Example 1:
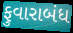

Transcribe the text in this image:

ફુવારાબંધ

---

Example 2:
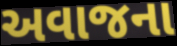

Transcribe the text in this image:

અવાજના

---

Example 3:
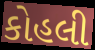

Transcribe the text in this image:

કોહલી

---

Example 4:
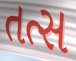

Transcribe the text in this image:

તત્સ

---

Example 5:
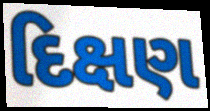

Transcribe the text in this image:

દિક્ષણ